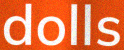
dolls